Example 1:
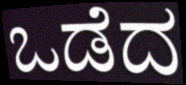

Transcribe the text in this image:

ಒಡೆದ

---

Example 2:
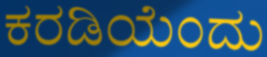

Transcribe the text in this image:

ಕರಡಿಯೆಂದು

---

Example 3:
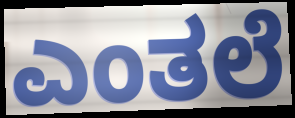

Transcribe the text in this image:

ಎಂತಲೆ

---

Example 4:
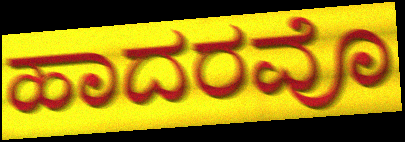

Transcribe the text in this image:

ಹಾದರವೊ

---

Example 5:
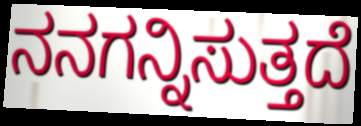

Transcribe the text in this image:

ನನಗನ್ನಿಸುತ್ತದೆ